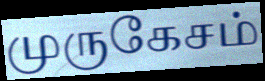
முருகேசம்